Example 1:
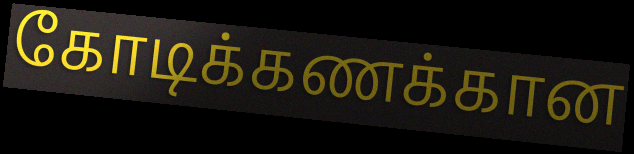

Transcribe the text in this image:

கோடிக்கணக்கான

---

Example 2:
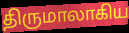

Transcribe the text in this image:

திருமாலாகிய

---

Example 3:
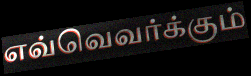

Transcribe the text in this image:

எவ்வெவர்க்கும்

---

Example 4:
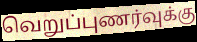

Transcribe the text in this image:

வெறுப்புணர்வுக்கு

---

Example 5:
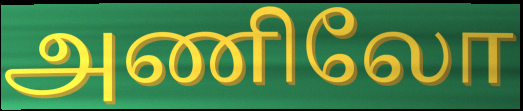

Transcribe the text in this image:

அணிலோ